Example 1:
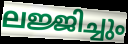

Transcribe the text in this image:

ലജ്ജിച്ചും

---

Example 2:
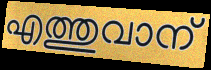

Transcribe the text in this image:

എത്തുവാന്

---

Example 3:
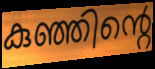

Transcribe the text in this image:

കുഞ്ഞിന്റെ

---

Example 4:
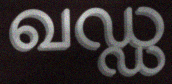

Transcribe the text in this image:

ഖഡ്ഡ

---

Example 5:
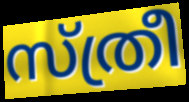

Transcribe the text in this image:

സ്ത്രീ